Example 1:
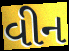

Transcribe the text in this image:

વીન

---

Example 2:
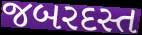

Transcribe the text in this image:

જબરદસ્ત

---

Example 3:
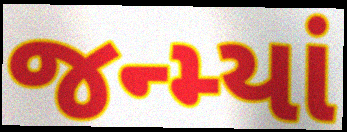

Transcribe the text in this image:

જન્મ્યાં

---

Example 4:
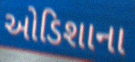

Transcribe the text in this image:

ઓડિશાના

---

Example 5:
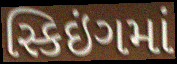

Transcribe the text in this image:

સ્કિઇંગમાં